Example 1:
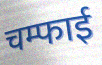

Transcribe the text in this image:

चम्फाई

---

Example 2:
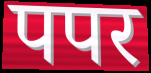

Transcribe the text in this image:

पपर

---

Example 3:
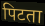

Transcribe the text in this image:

पिटता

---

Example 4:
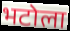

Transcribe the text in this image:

भटोला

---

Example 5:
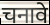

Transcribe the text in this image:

चनावे